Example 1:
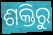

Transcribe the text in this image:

ଶକ୍ତିରୁ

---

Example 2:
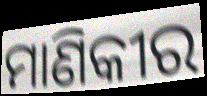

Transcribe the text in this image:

ମାଣିକୀର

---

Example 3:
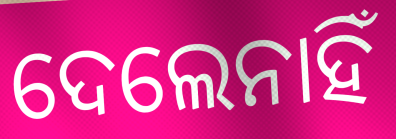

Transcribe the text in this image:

ଦେଲେନାହିଁ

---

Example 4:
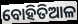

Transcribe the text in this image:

ବୋହିତିଆଳ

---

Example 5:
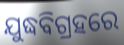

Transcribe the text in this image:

ଯୁଦ୍ଧବିଗ୍ରହରେ